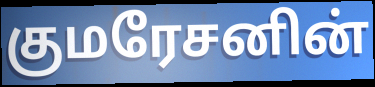
குமரேசனின்